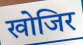
खोजिर